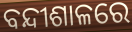
ବନ୍ଦୀଶାଳରେ